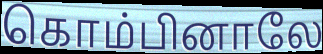
கொம்பினாலே